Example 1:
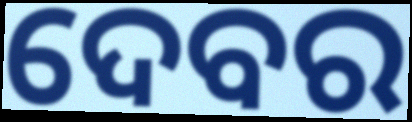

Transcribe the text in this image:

ଦେବର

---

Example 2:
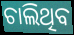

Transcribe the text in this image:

ଚାଲିଥିବ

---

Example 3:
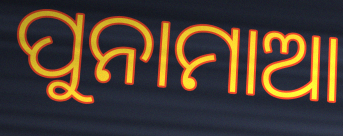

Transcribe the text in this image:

ପୁନାମାଆ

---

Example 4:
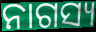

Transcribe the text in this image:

ନାଗସ୍ୟ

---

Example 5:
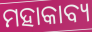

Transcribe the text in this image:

ମହାକାବ୍ୟ